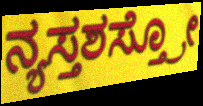
ನ್ಯಸ್ತಶಸ್ತ್ರೋ